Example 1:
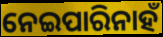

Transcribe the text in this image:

ନେଇପାରିନାହଁ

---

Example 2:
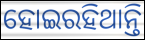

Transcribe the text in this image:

ହୋଇରହିଥାନ୍ତି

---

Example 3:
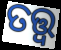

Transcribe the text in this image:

ତତ୍ତ୍ବ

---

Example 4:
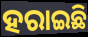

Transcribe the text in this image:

ହରାଇଛି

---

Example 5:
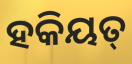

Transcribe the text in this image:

ହକିୟତ୍